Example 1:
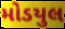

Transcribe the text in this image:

મોડયુલ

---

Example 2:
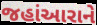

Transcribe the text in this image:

જહાંઆરાને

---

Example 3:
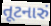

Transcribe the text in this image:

તૂટનારું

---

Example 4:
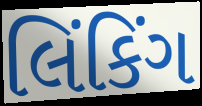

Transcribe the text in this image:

લિંકિંગ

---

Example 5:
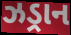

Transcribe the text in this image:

ઝડ્રાન